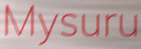
Mysuru